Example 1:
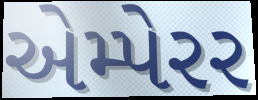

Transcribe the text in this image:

એમ્પેરર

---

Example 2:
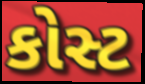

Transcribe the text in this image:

કોસ્ટ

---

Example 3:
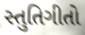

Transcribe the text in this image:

સ્તુતિગીતો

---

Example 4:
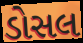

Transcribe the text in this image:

ડોસલ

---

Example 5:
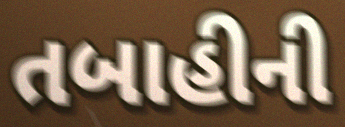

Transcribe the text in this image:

તબાહીની